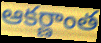
ఆకర్ణాంత